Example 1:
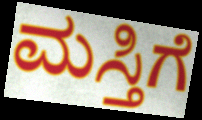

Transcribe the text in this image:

ಮಸ್ತಿಗೆ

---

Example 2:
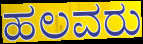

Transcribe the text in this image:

ಹಲವರು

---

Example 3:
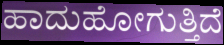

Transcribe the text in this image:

ಹಾದುಹೋಗುತ್ತಿದೆ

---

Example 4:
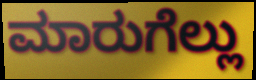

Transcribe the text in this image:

ಮಾರುಗೆಲ್ಲು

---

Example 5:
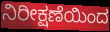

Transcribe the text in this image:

ನಿರೀಕ್ಷಣೆಯಿಂದ